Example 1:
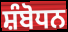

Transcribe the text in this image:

ਸ਼ੰਬੋਧਨ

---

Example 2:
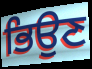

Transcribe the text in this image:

ਭਿਉਣ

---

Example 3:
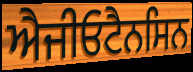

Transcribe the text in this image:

ਐਜੀਓਟੈਨਸਿਨ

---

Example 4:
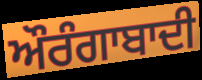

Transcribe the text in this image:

ਔਰੰਗਾਬਾਦੀ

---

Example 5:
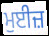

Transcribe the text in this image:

ਮੁਈਜ਼